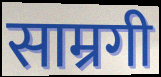
साम्रगी